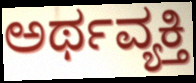
ಅರ್ಥವ್ಯಕ್ತಿ